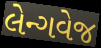
લેન્ગવેજ